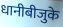
धानीबीजुके